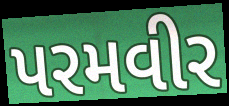
પરમવીર